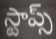
స్టాప్స్